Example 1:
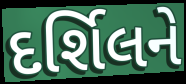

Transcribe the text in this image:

દર્શિલને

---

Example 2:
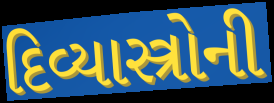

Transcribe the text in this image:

દિવ્યાસ્ત્રોની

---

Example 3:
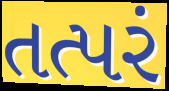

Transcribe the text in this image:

તત્પરં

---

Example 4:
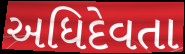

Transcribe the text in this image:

અધિદેવતા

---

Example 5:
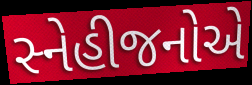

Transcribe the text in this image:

સ્નેહીજનોએ